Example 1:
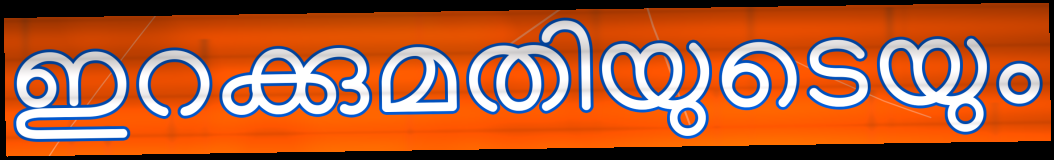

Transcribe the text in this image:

ഇറക്കുമതിയുടെയും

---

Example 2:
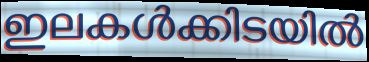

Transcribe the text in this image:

ഇലകൾക്കിടയിൽ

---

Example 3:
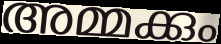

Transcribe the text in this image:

അമ്മക്കും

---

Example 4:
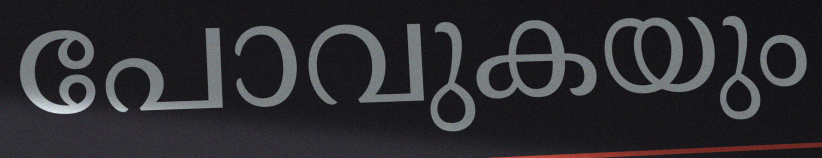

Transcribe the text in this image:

പോവുകയും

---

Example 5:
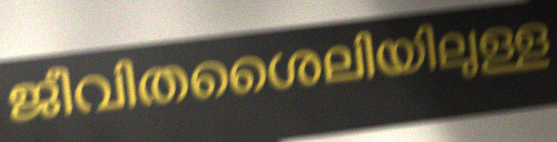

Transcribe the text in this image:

ജീവിതശൈലിയിലുള്ള